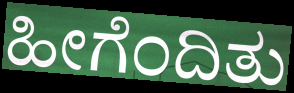
ಹೀಗೆಂದಿತು